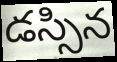
డస్సిన